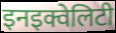
इनइक्वेलिटी